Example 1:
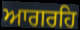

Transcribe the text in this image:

ਆਗਰਹਿ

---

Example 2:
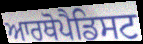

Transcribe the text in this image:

ਆਰਥੋਪੈਡਿਸਟ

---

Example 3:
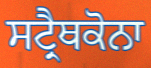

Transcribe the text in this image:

ਸਟ੍ਰੈਥਕੋਨਾ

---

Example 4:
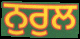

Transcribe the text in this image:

ਨੁਰੁਲ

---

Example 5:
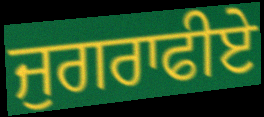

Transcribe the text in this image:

ਜੁਗਰਾਫੀਏ